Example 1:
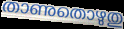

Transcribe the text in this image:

താണുതൊഴുതു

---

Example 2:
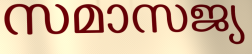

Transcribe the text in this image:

സമാസജ്യ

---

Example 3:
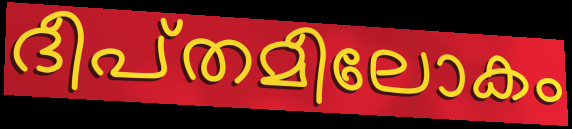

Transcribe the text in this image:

ദീപ്‌തമീലോകം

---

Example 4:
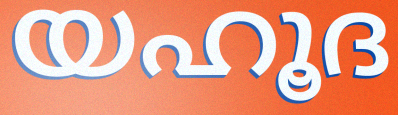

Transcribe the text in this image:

യഹൂദ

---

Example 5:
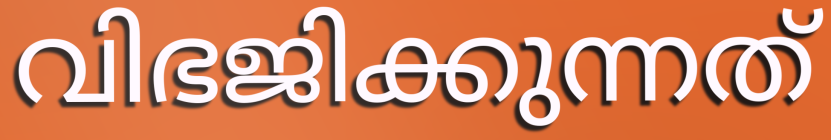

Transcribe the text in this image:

വിഭജിക്കുന്നത്